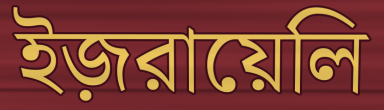
ইজ়রায়েলি